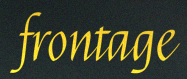
frontage